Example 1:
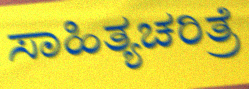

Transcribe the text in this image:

ಸಾಹಿತ್ಯಚರಿತ್ರೆ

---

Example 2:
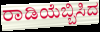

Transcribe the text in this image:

ರಾಡಿಯೆಬ್ಬಿಸಿದ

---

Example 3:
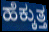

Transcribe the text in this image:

ಹೆಕ್ಕುತ್ತ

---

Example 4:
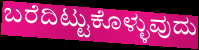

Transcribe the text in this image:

ಬರೆದಿಟ್ಟುಕೊಳ್ಳುವುದು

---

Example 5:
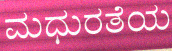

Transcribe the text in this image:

ಮಧುರತೆಯ